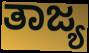
ತಾಜ್ಯ